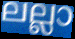
ലല്ലാ